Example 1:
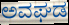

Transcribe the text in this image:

ಅವಘಡ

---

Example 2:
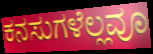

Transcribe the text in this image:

ಕನಸುಗಳೆಲ್ಲವೂ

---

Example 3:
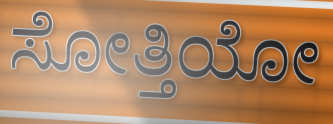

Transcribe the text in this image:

ಸೋತ್ತಿಯೋ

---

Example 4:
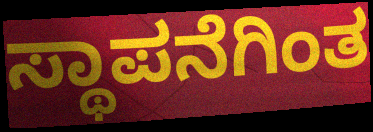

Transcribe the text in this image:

ಸ್ಥಾಪನೆಗಿಂತ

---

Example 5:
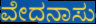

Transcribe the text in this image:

ವೇದನಾಸು